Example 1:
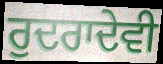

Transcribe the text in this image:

ਰੁਦਰਾਦੇਵੀ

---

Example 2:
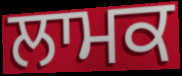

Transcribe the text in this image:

ਲਾਮਕ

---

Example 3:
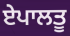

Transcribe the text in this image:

ਏਪਾਲਤੂ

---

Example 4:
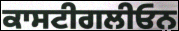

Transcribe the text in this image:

ਕਾਸਟੀਗਲੀਓਨ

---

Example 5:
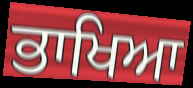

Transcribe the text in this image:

ਭਾਖਿਆ